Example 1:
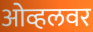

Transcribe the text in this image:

ओव्हलवर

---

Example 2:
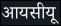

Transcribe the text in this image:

आयसीयू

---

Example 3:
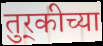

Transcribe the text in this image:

तुर्कीच्या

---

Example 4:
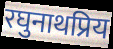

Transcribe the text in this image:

रघुनाथप्रिय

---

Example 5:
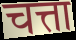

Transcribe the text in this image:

चत्ता